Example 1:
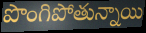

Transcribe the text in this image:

పొంగిపోతున్నాయి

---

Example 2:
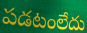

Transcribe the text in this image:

పడటంలేదు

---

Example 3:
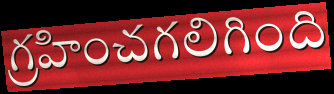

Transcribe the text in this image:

గ్రహించగలిగింది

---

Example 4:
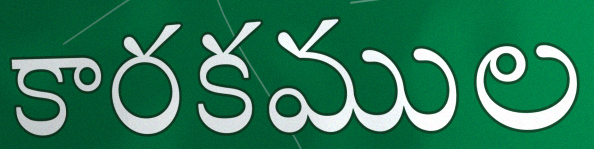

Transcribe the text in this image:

కారకముల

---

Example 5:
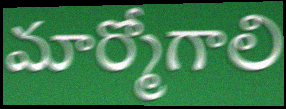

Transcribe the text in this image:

మార్మోగాలి